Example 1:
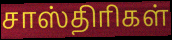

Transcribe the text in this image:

சாஸ்திரிகள்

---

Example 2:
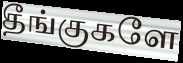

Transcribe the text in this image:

தீங்குகளே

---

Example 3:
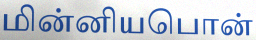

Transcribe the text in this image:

மின்னியபொன்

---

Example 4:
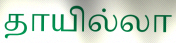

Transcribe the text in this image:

தாயில்லா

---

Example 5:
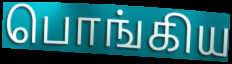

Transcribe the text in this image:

பொங்கிய